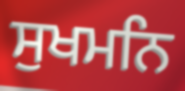
ਸੁਖਮਨਿ